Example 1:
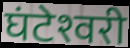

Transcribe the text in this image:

घंटेश्वरी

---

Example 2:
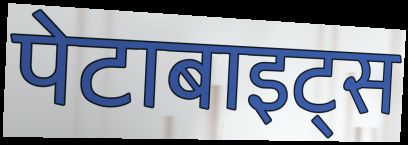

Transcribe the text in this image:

पेटाबाइट्स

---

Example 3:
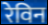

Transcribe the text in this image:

रेविन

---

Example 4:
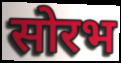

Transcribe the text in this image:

सोरभ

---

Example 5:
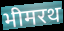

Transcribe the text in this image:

भीमरथ